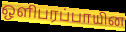
ஒளிபரப்பாயின